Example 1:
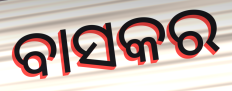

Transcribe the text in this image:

ବାସକର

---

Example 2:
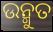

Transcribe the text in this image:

ଉନ୍ମୁତ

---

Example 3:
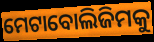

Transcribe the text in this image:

ମେଟାବୋଲିଜିମକୁ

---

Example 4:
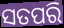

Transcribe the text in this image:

ସତପରି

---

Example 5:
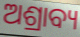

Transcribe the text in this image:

ଅଶ୍ରାବ୍ୟ